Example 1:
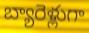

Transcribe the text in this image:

బ్యారెళ్లుగా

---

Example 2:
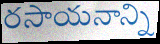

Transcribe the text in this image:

రసాయనాన్ని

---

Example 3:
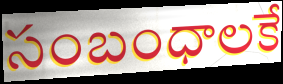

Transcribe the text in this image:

సంబంధాలకే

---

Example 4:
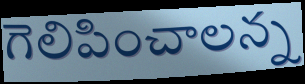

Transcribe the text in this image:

గెలిపించాలన్న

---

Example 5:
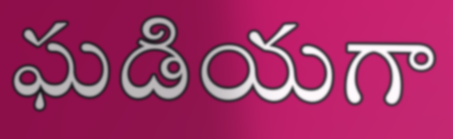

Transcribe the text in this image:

ఘడియగా